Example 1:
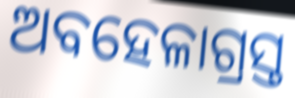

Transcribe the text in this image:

ଅବହେଳାଗ୍ରସ୍ତ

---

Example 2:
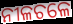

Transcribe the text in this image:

ନୀଳଚଳେ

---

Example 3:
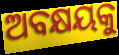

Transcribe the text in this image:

ଅବକ୍ଷୟକୁ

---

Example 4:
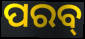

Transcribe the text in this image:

ପରବ୍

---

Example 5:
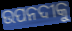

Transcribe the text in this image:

ଉପନଦୀକୁ